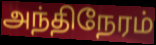
அந்திநேரம்